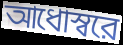
আধোস্বরে